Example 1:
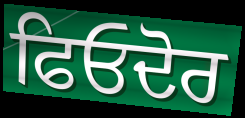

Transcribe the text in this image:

ਫਿਓਦੋਰ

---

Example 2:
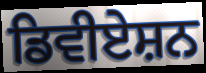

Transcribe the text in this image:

ਡਿਵੀਏਸ਼ਨ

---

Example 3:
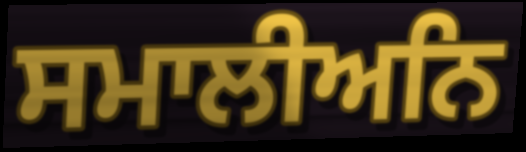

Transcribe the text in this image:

ਸਮਾਲੀਅਨਿ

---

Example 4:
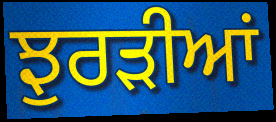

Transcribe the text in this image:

ਝੁਰੜੀਆਂ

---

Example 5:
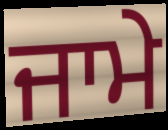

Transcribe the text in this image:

ਜਾਮੇ